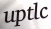
uptlc